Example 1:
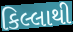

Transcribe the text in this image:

કિલ્લાથી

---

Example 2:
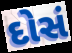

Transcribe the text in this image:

દોસં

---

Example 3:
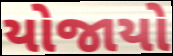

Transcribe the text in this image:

યોજાયો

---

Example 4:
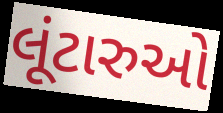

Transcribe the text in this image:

લૂંટારુઓ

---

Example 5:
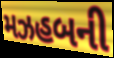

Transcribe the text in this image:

મઝહબની